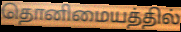
தொனிமையத்தில்